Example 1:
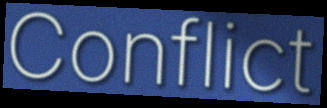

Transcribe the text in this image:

Conflict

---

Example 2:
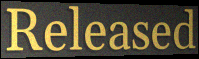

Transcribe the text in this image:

Released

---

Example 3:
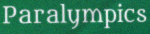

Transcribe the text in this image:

Paralympics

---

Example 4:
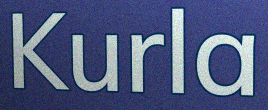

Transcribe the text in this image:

Kurla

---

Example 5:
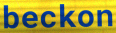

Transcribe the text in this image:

beckon